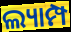
ଲ୍ୟାମ୍ପ